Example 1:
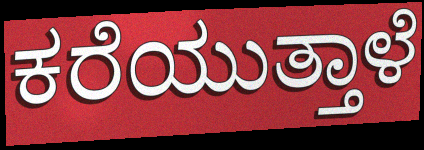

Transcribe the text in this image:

ಕರೆಯುತ್ತಾಳೆ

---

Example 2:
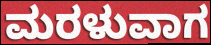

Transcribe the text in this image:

ಮರಳುವಾಗ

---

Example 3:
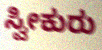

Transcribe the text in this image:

ಸ್ವೀಕುರು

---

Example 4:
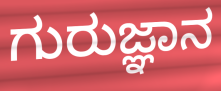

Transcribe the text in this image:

ಗುರುಜ್ಞಾನ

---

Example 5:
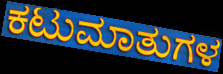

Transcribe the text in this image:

ಕಟುಮಾತುಗಳ